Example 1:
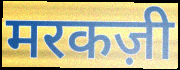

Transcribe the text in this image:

मरकज़ी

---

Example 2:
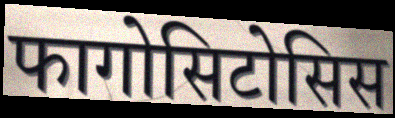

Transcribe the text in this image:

फागोसिटोसिस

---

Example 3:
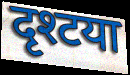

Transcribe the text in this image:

दृश्टया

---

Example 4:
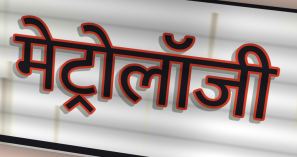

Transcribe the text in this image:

मेट्रोलॉजी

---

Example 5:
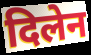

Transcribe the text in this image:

दिलेन